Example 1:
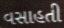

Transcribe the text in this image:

વસાહતી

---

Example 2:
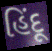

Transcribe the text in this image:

હિંદૂ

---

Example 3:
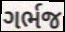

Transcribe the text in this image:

ગર્ભજ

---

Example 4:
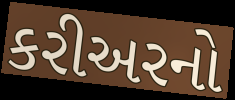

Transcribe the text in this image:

કરીઅરનો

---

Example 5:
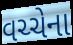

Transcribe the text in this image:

વચ્ચેના